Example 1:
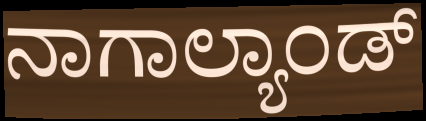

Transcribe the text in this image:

ನಾಗಾಲ್ಯಾಂಡ್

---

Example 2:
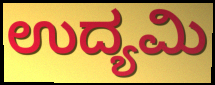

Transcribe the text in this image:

ಉದ್ಯಮಿ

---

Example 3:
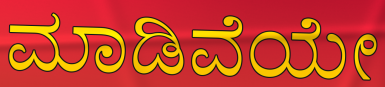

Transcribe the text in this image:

ಮಾಡಿವೆಯೇ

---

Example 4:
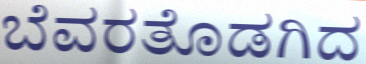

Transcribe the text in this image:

ಬೆವರತೊಡಗಿದ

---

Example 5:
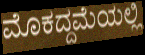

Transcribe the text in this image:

ಮೊಕದ್ದಮೆಯಲ್ಲಿ